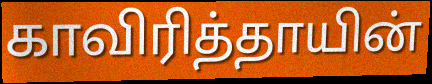
காவிரித்தாயின்